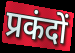
प्रकंदों